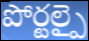
పోర్టల్పై